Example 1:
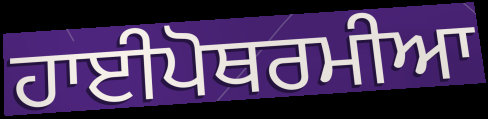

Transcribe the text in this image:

ਹਾਈਪੋਥਰਮੀਆ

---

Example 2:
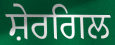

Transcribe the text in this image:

ਸ਼ੇਰਗਿਲ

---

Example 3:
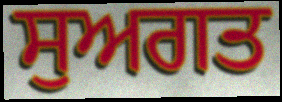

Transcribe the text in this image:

ਸੁਅਗਤ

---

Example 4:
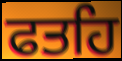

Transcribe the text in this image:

ਫਤਹਿ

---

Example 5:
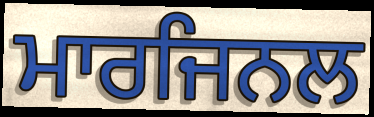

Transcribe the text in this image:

ਮਾਰਜਿਨਲ